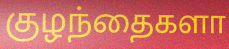
குழந்தைகளா